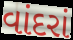
વાંદરાં